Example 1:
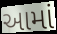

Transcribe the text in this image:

આમાં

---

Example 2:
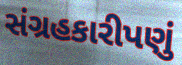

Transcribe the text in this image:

સંગ્રહકારીપણું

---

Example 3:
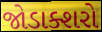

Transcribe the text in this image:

જોડાક્શરો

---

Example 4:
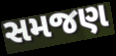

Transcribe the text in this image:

સમજણ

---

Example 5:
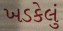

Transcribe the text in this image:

ખડકેલું